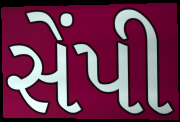
સેંપી